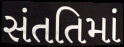
સંતતિમાં